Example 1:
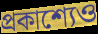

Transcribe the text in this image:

প্রকাশ্যেও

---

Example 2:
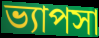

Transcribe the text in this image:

ভ্যাপসা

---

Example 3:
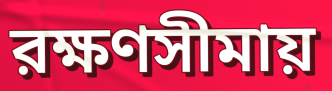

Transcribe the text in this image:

রক্ষণসীমায়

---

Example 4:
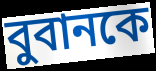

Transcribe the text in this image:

বুবানকে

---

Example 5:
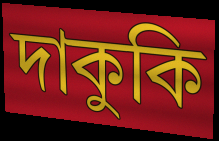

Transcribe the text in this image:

দাকুকি